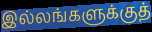
இல்லங்களுக்குத்